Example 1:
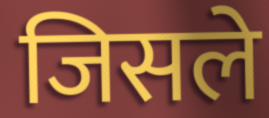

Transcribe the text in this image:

जिसले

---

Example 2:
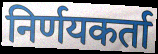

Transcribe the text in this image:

निर्णयकर्ता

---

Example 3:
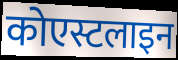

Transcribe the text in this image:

कोएस्टलाइन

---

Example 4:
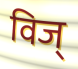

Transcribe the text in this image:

विज्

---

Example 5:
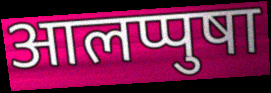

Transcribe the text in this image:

आलप्पुषा